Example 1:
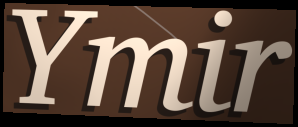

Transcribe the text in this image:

Ymir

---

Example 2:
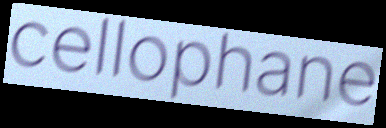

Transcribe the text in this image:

cellophane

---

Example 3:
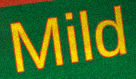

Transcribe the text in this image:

Mild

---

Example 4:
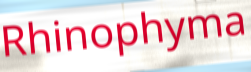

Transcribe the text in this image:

Rhinophyma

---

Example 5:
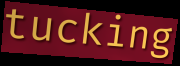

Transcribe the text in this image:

tucking